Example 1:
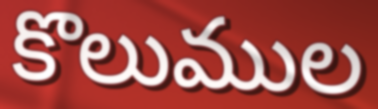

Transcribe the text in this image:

కొలుముల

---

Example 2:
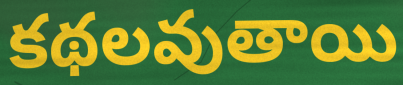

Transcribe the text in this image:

కథలవుతాయి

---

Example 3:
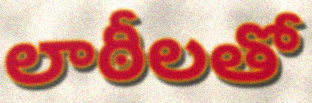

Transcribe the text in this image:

లాఠీలతో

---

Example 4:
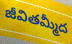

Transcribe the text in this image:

జీవితమ్మీద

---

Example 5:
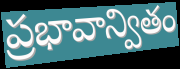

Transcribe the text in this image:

ప్రభావాన్వితం